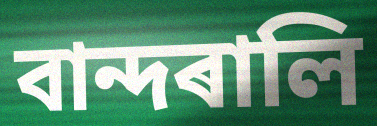
বান্দৰালি